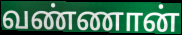
வண்ணான்